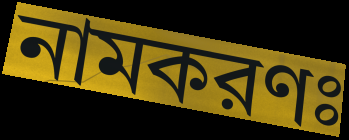
নামকরণঃ